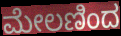
ಮೇಲಣಿಂದ